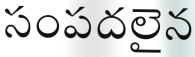
సంపదలైన